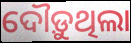
ଦୌଡ଼ୁଥିଲା